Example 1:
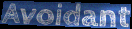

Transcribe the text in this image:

Avoidant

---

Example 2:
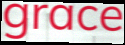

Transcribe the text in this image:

grace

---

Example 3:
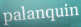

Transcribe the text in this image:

palanquin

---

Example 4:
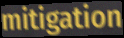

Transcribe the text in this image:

mitigation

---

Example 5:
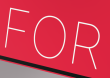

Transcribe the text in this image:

FOR